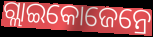
ଗ୍ଲାଇକୋଜେନ୍ରେ